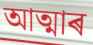
আত্মাৰ